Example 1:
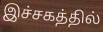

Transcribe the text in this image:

இச்சகத்தில்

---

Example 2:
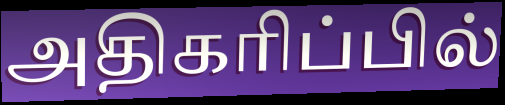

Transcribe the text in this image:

அதிகரிப்பில்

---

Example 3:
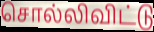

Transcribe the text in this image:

சொல்லிவிட்டு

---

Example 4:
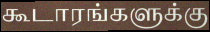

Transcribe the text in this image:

கூடாரங்களுக்கு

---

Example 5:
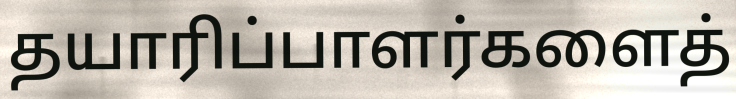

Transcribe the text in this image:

தயாரிப்பாளர்களைத்